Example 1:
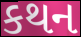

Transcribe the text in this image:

કથન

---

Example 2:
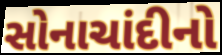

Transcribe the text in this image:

સોનાચાંદીનો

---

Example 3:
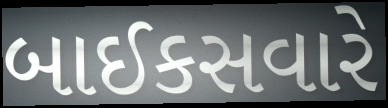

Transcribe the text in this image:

બાઈકસવારે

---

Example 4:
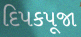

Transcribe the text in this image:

દિપકપૂજા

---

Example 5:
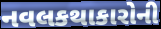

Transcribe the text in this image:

નવલકથાકારોની